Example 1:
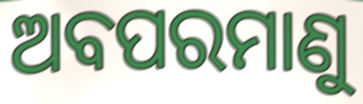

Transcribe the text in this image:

ଅବପରମାଣୁ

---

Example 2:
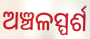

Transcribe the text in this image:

ଅଞ୍ଚଳସ୍ପର୍ଶ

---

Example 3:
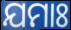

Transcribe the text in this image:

ଯମାଃ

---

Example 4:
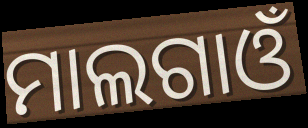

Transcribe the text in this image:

ମାଲଗାଓଁ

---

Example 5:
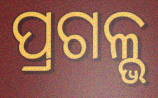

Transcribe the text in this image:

ପ୍ରଗଳ୍ଭ